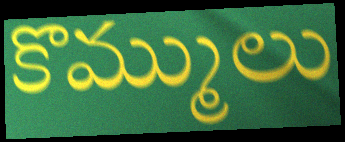
కొమ్ములు